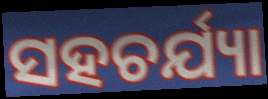
ସହଚର୍ଯ୍ୟା